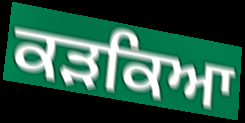
ਕੜਕਿਆ